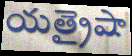
యత్రైషా